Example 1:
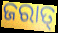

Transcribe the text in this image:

ଜରାତ୍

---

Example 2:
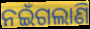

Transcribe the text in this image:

ନଇଁଗଲାଣି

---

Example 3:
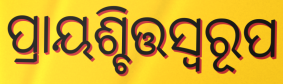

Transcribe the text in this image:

ପ୍ରାୟଶ୍ଚିତ୍ତସ୍ୱରୂପ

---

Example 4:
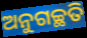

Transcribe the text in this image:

ଅନୁଗଚ୍ଛତି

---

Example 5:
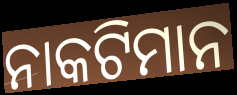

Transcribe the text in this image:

ନାକଟିମାନ